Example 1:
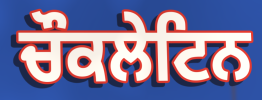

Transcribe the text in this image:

ਚੌਕਲੇਟਿਨ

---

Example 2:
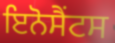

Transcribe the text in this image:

ਇਨੋਸੈਂਟਸ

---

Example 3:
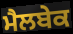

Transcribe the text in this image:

ਮੈਲਬੇਕ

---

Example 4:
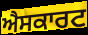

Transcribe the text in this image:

ਐਸਕਾਰਟ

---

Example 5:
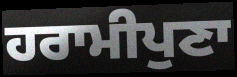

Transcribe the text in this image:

ਹਰਾਮੀਪੁਣਾ